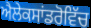
ਐਲੇਕਸਾਂਡਰੋਵਿੱਚ